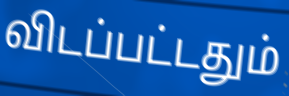
விடப்பட்டதும்